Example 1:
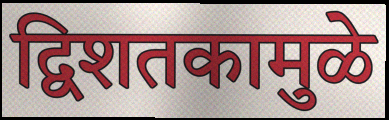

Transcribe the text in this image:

द्विशतकामुळे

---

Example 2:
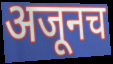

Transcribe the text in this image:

अजूनच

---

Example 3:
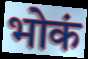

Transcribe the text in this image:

भोकं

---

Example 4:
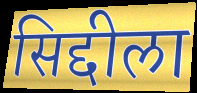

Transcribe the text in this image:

सिद्दीला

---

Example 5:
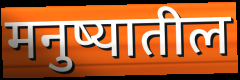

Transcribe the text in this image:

मनुष्यातील